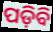
ପଡ଼ିବି